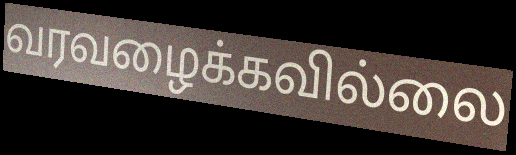
வரவழைக்கவில்லை